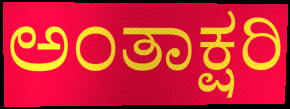
ಅಂತಾಕ್ಷರಿ